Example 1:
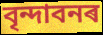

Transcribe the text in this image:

বৃন্দাবনৰ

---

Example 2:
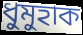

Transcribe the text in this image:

ধুমুহাক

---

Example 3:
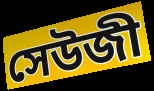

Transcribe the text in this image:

সেউজী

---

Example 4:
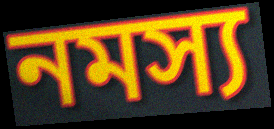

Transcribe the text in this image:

নমস্য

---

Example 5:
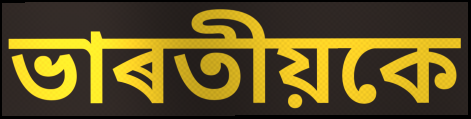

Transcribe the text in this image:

ভাৰতীয়কে